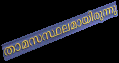
താമസസ്ഥലമായിരുന്നു